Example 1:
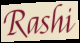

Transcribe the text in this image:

Rashi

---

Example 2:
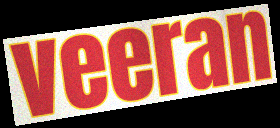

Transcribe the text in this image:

veeran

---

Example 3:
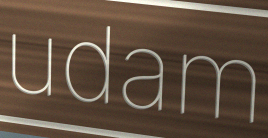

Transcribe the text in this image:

udam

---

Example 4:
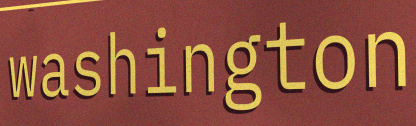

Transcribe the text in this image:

washington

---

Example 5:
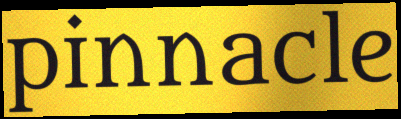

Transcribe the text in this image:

pinnacle